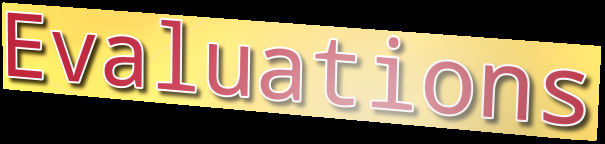
Evaluations